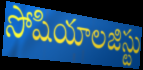
సోషియాలజిస్టు